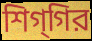
শিগ্‌গির